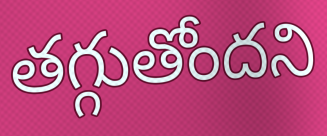
తగ్గుతోందని